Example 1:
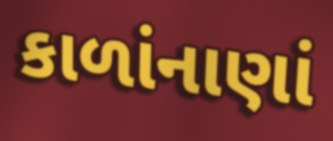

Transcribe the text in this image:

કાળાંનાણાં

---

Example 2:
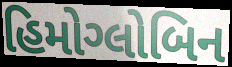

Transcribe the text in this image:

હિમોગ્લોબિન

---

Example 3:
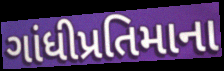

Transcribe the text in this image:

ગાંધીપ્રતિમાના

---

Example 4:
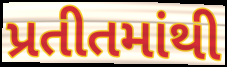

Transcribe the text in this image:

પ્રતીતમાંથી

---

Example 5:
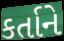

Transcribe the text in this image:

કર્તાને